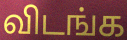
விடங்க